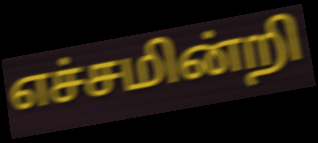
எச்சமின்றி